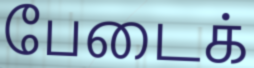
பேடைக்